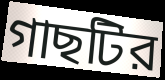
গাছটির